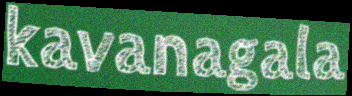
kavanagala